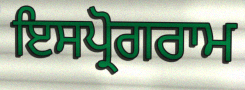
ਇਸਪ੍ਰੋਗਰਾਮ